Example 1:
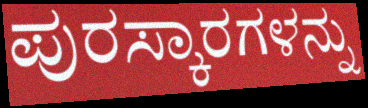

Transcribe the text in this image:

ಪುರಸ್ಕಾರಗಳನ್ನು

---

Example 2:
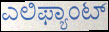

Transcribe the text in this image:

ಎಲಿಫ್ಯಾಂಟ್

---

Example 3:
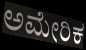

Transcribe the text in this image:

ಅಮೇರಿಕ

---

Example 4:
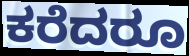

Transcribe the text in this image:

ಕರೆದರೂ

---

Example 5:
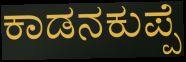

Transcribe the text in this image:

ಕಾಡನಕುಪ್ಪೆ